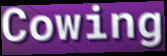
Cowing